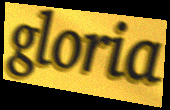
gloria